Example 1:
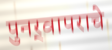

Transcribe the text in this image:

पुनर्वापराचे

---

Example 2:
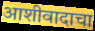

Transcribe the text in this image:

आशीवादाचा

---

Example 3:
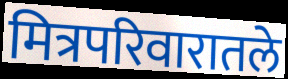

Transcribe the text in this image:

मित्रपरिवारातले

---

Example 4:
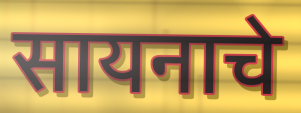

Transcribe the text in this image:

सायनाचे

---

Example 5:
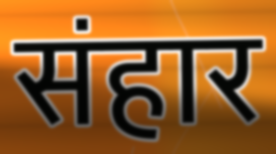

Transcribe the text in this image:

संहार